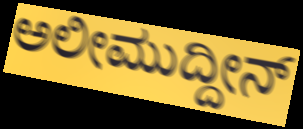
ಅಲೀಮುದ್ದೀನ್